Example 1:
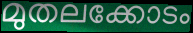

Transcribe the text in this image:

മുതലക്കോടം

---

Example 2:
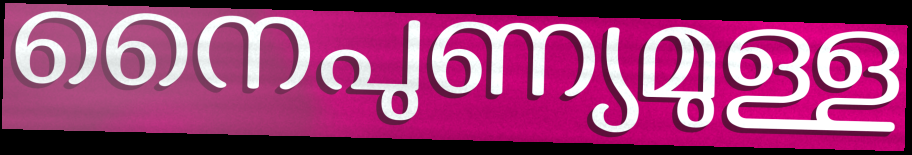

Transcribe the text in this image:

നൈപുണ്യമുള്ള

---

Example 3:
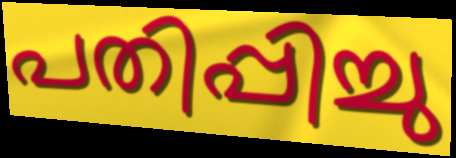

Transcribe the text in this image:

പതിപ്പിച്ചു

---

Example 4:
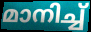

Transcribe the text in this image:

മാനിച്ച്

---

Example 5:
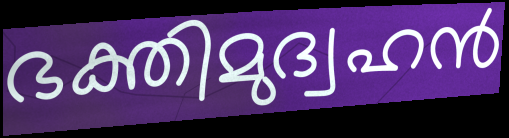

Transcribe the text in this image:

ഭക്തിമുദ്വഹൻ